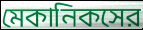
মেকানিকসের